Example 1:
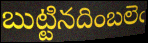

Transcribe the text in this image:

బుట్టినదింబలెఁ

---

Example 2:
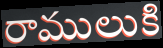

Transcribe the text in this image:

రాములుకి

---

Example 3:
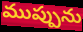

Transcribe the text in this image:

ముప్పును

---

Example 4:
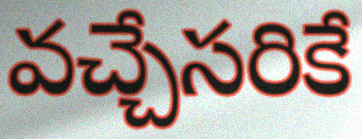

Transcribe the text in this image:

వచ్చేసరికే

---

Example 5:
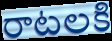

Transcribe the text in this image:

రాటలకి